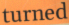
turned